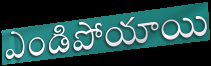
ఎండిపోయాయి